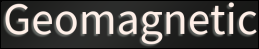
Geomagnetic